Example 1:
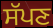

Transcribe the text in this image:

ਸੱਪਣ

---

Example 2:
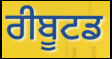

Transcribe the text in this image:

ਰੀਬੂਟਡ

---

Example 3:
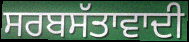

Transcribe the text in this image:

ਸਰਬਸੱਤਾਵਾਦੀ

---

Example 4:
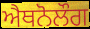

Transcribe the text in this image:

ਐਥਨੋਲੌਗ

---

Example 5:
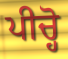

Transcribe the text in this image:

ਪੀਚ੍ਹੋ